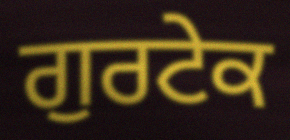
ਗੁਰਟੇਕ